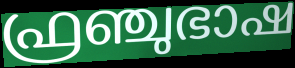
ഫ്രഞ്ചുഭാഷ